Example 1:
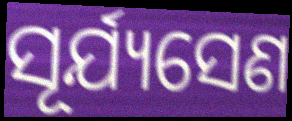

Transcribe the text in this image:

ସୂର୍ଯ୍ୟସେଣ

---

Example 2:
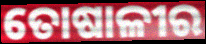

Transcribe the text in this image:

ତୋଷାଳୀର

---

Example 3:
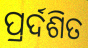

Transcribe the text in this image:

ପ୍ରର୍ଦଶିତ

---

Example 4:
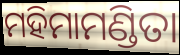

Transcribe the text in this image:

ମହିମାମଣ୍ଡିତା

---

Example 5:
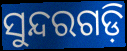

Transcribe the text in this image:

ସୁନ୍ଦରଗଡ଼ି